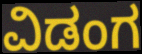
ವಿಡಂಗ